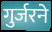
गुर्जरने